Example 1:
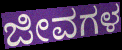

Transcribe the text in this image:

ಜೀವಗಳ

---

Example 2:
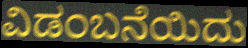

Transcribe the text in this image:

ವಿಡಂಬನೆಯಿದು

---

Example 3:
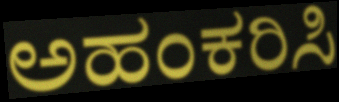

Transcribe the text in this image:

ಅಹಂಕರಿಸಿ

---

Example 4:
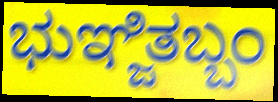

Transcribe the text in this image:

ಭುಞ್ಜಿತಬ್ಬಂ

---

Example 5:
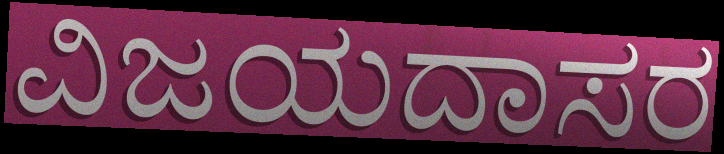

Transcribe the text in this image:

ವಿಜಯದಾಸರ